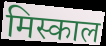
मिस्काल